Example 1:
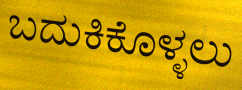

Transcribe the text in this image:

ಬದುಕಿಕೊಳ್ಳಲು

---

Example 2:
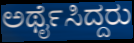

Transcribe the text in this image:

ಅರ್ಥೈಸಿದ್ದರು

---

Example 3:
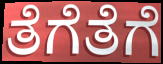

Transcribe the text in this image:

ತೆಗೆತೆಗೆ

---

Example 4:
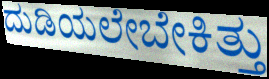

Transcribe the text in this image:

ದುಡಿಯಲೇಬೇಕಿತ್ತು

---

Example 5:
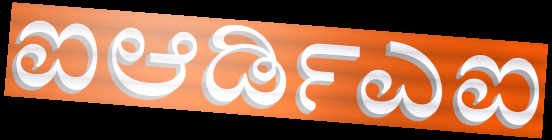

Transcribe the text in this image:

ಐಆರ್ಡಿಎಐ